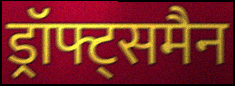
ड्रॉफ्ट्समैन